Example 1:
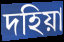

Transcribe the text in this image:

দহিয়া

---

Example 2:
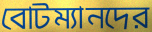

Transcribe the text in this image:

বোটম্যানদের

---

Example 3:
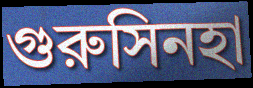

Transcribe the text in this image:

গুরুসিনহা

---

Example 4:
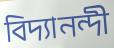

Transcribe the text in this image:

বিদ্যানন্দী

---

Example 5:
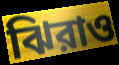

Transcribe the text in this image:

ঝিরাও